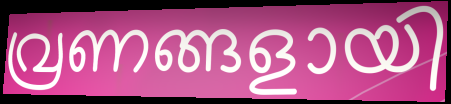
വ്രണങ്ങളായി